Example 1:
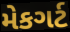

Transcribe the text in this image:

મેકગર્ટ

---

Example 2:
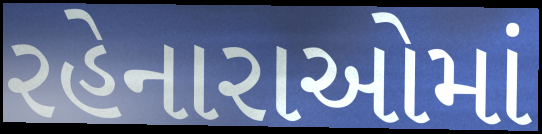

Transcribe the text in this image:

રહેનારાઓમાં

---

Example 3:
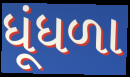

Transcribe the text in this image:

ધૂંધળા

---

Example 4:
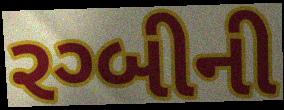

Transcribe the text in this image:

રગ્બીની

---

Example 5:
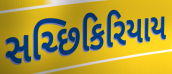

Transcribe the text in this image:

સચ્છિકિરિયાય